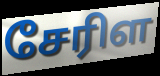
சேரிள